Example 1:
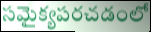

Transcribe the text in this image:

సమైక్యపరచడంలో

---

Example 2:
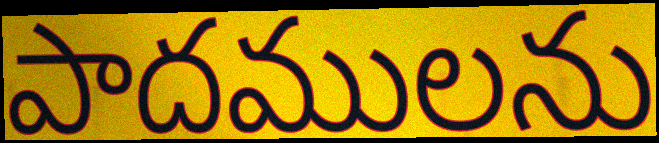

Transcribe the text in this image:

పాదములను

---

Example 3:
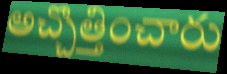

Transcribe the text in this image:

అచ్చొత్తించారు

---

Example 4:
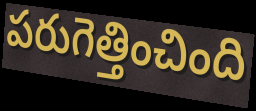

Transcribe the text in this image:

పరుగెత్తించింది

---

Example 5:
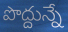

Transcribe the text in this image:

పొద్దున్నే